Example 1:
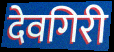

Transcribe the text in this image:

देवगिरी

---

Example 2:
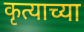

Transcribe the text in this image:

कृत्याच्या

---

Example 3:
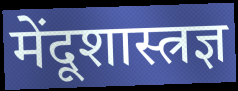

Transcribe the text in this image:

मेंदूशास्त्रज्ञ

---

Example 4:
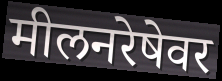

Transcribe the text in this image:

मीलनरेषेवर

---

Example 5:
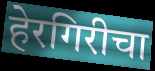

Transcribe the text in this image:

हेरगिरीचा